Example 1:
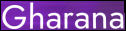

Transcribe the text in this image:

Gharana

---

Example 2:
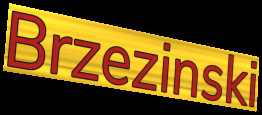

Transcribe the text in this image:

Brzezinski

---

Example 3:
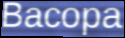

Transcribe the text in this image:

Bacopa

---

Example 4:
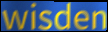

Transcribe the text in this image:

wisden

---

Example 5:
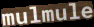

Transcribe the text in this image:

mulmule